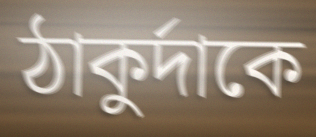
ঠাকুর্দাকে